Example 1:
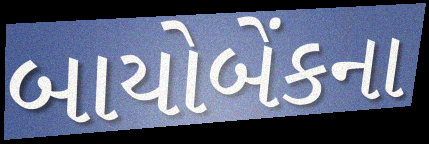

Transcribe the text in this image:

બાયોબેંકના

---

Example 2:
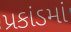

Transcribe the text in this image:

પ્રકાંડમાં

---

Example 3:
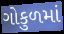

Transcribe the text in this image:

ગોકુળમાં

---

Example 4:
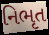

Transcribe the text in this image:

નિભૃત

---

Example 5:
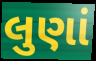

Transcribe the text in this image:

લુણાં